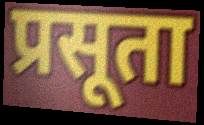
प्रसूता